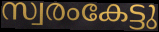
സ്വരംകേട്ടു